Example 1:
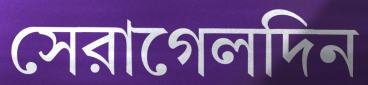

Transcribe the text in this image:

সেরাগেলদিন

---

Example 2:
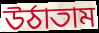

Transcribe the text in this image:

উঠাতাম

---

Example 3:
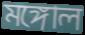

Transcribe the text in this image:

মঙ্গোল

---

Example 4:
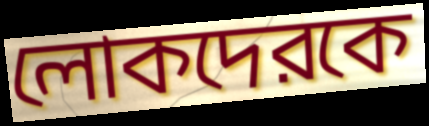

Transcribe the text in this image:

লোকদেরকে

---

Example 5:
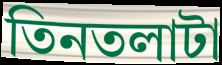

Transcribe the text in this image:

তিনতলাটা